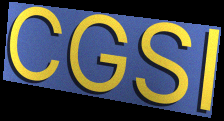
CGSI